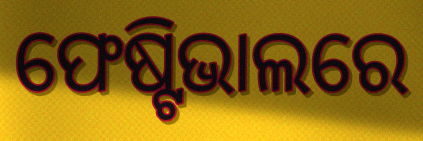
ଫେଷ୍ଟିଭାଲରେ